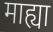
माह्या